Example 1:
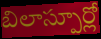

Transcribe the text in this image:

బిలాస్పూర్లో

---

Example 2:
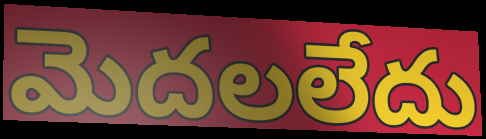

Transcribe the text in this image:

మెదలలేదు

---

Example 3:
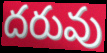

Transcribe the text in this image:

దరువు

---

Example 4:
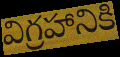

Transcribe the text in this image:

విగ్రహానికి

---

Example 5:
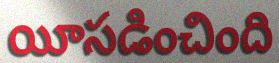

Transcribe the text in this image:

యీసడించింది